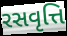
રસવૃત્તિ